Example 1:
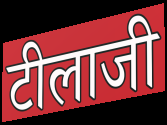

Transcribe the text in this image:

टीलाजी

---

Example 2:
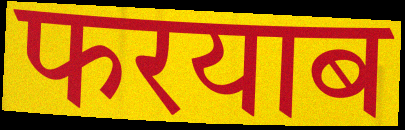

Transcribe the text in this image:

फरयाब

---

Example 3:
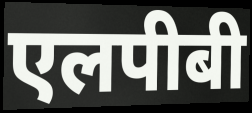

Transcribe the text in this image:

एलपीबी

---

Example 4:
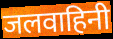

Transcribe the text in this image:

जलवाहिनी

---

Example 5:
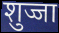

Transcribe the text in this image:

शुज्जा